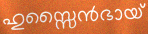
ഹുസ്സൈൻഭായ്